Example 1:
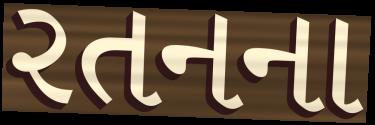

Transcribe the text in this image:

રતનના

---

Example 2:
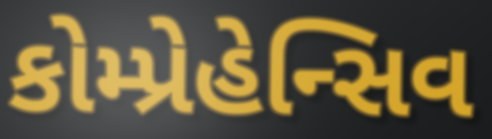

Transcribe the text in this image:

કોમ્પ્રેહેન્સિવ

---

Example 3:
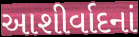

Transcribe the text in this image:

આશીર્વાદનાં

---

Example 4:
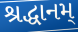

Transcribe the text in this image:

શ્રદ્ધાનમ્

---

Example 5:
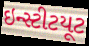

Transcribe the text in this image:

ઇન્સ્ટીટયૂટ